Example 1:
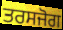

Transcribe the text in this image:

ਤਰਸਜੋਗ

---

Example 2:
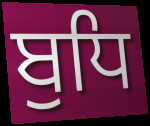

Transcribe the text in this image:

ਬੁਧਿ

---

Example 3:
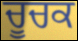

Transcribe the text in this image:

ਚੂਚਕ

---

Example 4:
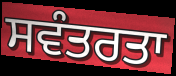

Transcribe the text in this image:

ਸਵੰਤਰਤਾ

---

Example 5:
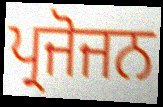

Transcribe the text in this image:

ਪ੍ਰਜੋਜਨ